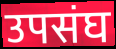
उपसंघ